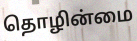
தொழின்மை